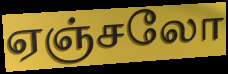
ஏஞ்சலோ